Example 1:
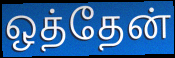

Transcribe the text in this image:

ஒத்தேன்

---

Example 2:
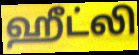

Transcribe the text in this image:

ஹீட்லி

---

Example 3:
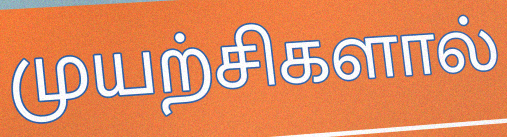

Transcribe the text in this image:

முயற்சிகளால்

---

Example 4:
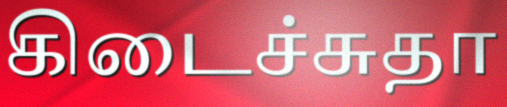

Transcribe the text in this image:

கிடைச்சுதா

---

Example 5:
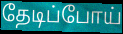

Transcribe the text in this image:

தேடிப்போய்